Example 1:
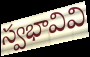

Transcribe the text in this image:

స్వభావివి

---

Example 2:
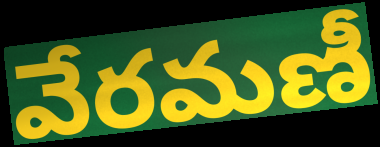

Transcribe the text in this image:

వేరమణీ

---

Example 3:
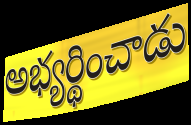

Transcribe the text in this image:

అభ్యర్థించాడు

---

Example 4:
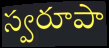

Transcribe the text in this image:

స్వరూపా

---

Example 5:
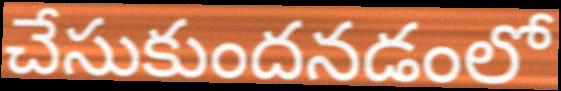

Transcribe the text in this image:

చేసుకుందనడంలో